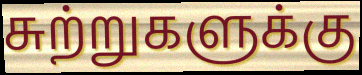
சுற்றுகளுக்கு